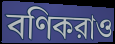
বণিকরাও